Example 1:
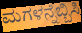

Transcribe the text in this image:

ಮಗಳನ್ನೆಬ್ಬಿಸಿ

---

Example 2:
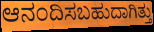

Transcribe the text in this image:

ಆನಂದಿಸಬಹುದಾಗಿತ್ತು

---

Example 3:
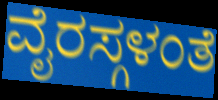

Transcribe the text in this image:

ವೈರಸ್ಗಳಂತೆ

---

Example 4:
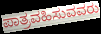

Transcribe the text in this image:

ಪಾತ್ರವಹಿಸುವವರು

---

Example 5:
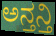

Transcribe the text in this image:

ಅನ್ತನ್ತಿ